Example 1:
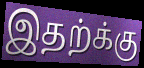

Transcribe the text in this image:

இதற்க்கு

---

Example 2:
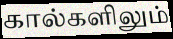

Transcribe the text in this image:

கால்களிலும்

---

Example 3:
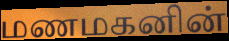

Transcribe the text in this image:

மணமகனின்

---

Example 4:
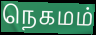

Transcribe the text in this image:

நெகமம்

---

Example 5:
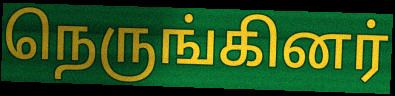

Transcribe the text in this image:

நெருங்கினர்